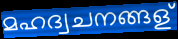
മഹദ്വചനങ്ങള്